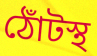
ঠোঁটস্থ